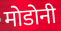
मोडोनी